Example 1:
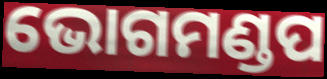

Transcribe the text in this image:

ଭୋଗମଣ୍ଡପ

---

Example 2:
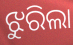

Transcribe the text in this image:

ଝୁରିଲା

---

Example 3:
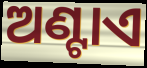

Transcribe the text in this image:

ଅଣ୍ଟାଏ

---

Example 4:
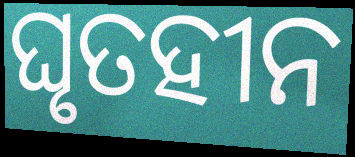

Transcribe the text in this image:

ଘୃତହୀନ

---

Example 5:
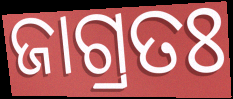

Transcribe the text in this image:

ଜାଗ୍ରତଃ